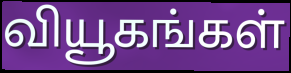
வியூகங்கள்